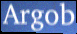
Argob